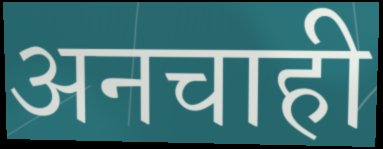
अनचाही